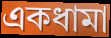
একধামা